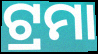
ଟ୍ରମା